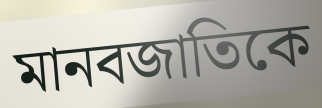
মানবজাতিকে